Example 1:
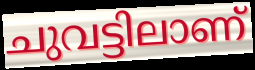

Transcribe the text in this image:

ചുവട്ടിലാണ്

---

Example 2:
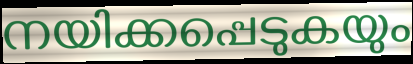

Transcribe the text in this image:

നയിക്കപ്പെടുകയും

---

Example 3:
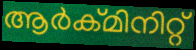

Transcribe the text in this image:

ആർക്മിനിറ്റ്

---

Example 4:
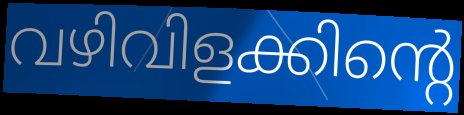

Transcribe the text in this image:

വഴിവിളക്കിന്റെ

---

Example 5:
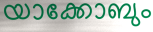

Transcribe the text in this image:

യാക്കോബും